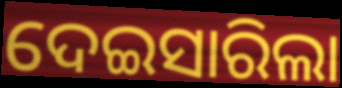
ଦେଇସାରିଲା